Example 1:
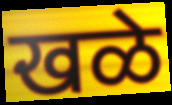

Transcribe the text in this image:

खळे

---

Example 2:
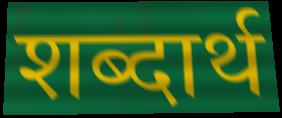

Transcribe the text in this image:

शब्दार्थ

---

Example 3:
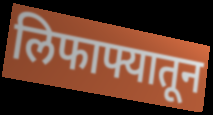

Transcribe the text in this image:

लिफाफ्यातून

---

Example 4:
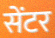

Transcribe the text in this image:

सेंटर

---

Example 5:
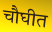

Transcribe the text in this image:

चौघीत